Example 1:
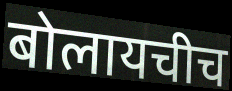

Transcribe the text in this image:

बोलायचीच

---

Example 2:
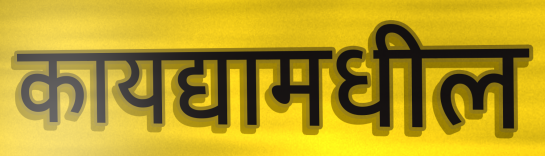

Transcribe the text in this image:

कायद्यामधील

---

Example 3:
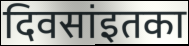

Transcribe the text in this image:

दिवसांइतका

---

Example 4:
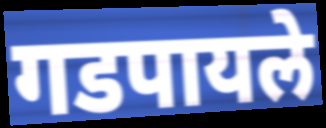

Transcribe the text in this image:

गडपायले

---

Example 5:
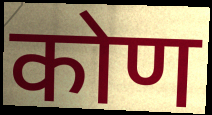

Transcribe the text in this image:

कोण